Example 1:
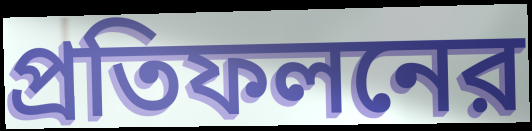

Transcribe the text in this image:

প্রতিফলনের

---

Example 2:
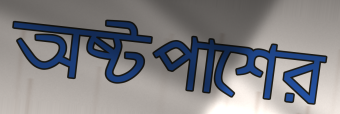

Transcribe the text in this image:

অষ্টপাশের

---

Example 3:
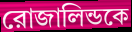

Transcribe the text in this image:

রোজালিন্ডকে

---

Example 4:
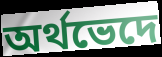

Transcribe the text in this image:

অর্থভেদে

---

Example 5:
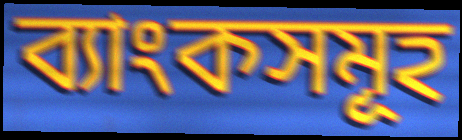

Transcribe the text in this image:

ব্যাংকসমূহ